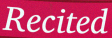
Recited